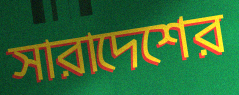
সারাদেশের